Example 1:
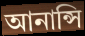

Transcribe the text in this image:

আনান্সি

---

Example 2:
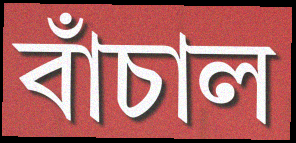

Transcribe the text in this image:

বাঁচাল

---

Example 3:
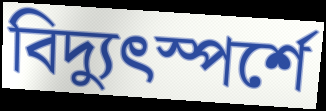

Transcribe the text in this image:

বিদ্যুৎস্পর্শে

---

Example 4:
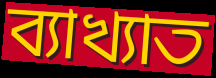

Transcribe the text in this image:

ব্যাখ্যাত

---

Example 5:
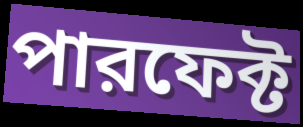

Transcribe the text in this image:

পারফেক্ট